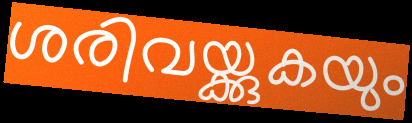
ശരിവയ്ക്കുകയും